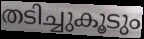
തടിച്ചുകൂടും